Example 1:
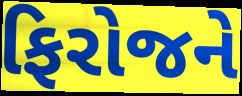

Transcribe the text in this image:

ફિરોજને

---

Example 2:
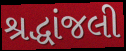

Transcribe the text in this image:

શ્રદ્ધાંજલી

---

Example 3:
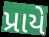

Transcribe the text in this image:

પ્રાયે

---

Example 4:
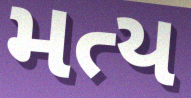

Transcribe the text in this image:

મત્ય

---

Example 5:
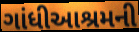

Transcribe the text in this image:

ગાંધીઆશ્રમની